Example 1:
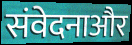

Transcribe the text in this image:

संवेदनाऔर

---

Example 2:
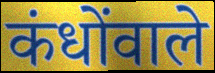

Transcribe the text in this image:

कंधोंवाले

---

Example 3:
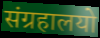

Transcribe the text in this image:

संग्रहालयो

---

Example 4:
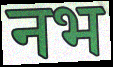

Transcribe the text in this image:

नभ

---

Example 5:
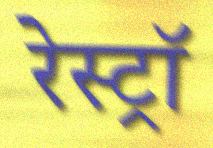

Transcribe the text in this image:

रेस्ट्रॉ